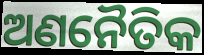
ଅଣନୈତିକ